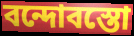
বন্দোবস্তো